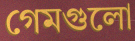
গেমগুলো